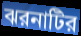
ঝরনাটির